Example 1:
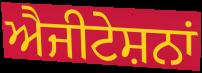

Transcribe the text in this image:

ਐਜੀਟੇਸ਼ਨਾਂ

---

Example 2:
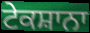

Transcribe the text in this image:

ਟੇਕਸ਼ਾਨਾ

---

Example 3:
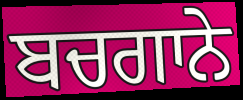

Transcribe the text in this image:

ਬਚਗਾਨੇ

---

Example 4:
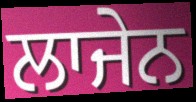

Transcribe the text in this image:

ਲਾਜੇਨ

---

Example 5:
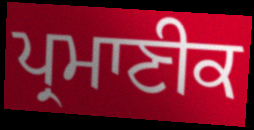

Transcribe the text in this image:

ਪ੍ਰਮਾਣੀਕ